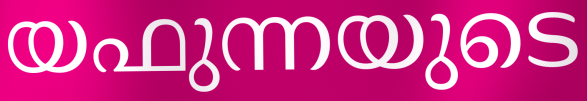
യഫുന്നയുടെ